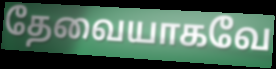
தேவையாகவே